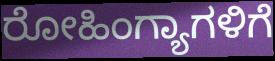
ರೋಹಿಂಗ್ಯಾಗಳಿಗೆ